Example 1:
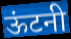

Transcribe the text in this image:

ऊंटनी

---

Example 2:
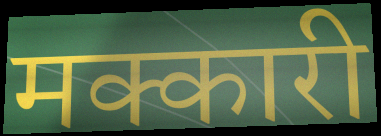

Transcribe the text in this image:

मक्कारी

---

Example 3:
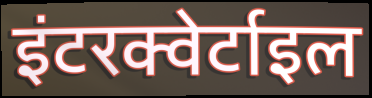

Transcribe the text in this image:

इंटरक्वेर्टाइल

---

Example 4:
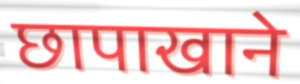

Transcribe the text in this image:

छापाखाने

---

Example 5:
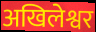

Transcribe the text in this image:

अखिलेश्वर